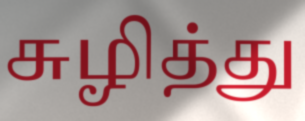
சுழித்து